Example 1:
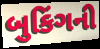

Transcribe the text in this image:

બુકિંગની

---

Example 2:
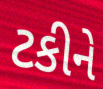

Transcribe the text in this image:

ટકીને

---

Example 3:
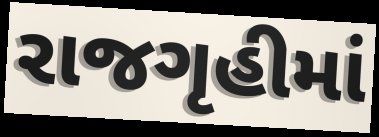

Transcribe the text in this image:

રાજગૃહીમાં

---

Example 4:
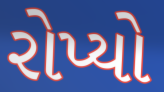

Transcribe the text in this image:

રોપ્યો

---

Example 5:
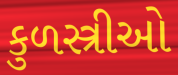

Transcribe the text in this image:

કુળસ્ત્રીઓ